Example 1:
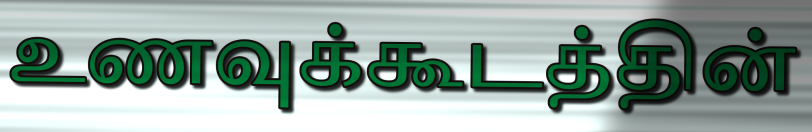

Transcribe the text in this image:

உணவுக்கூடத்தின்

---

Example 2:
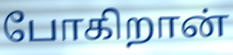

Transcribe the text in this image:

போகிறான்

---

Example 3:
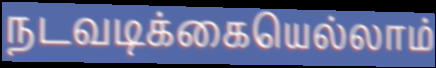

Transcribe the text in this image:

நடவடிக்கையெல்லாம்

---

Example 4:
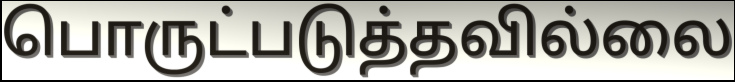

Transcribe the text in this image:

பொருட்படுத்தவில்லை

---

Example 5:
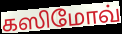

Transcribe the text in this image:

கஸிமோவ்